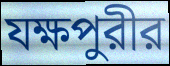
যক্ষপুরীর